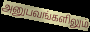
அனுபவங்களிலும்